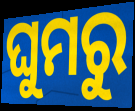
ଘୁମରୁ